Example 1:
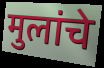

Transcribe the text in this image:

मुलांचे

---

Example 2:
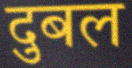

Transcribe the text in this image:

दुबल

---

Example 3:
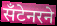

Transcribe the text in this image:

सँटेनरने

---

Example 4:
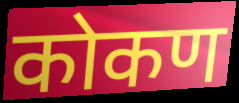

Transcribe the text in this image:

कोकण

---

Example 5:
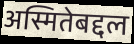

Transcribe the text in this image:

अस्मितेबद्दल